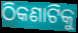
ଠିକଣାଟିକୁ